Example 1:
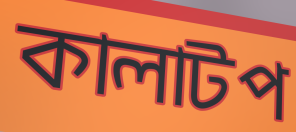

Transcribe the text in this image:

কালাটপ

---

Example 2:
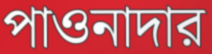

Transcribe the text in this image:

পাওনাদার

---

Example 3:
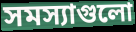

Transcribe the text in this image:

সমস্যাগুলো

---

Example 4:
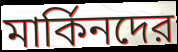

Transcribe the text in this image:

মার্কিনদের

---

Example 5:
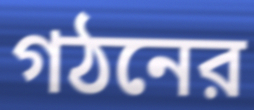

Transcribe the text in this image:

গঠনের